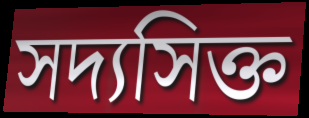
সদ্যসিক্ত